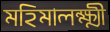
মহিমালক্ষ্মী